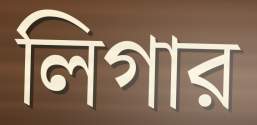
লিগার